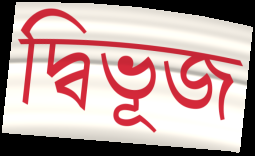
দ্বিভূজ